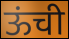
ऊंची